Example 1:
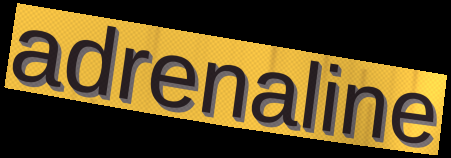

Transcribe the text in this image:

adrenaline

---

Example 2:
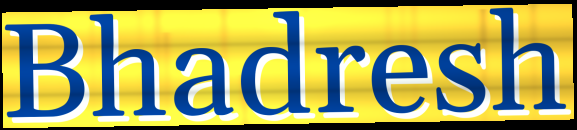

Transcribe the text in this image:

Bhadresh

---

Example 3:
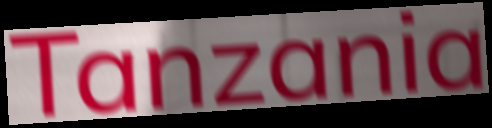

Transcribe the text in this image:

Tanzania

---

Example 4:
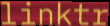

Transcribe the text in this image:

linktr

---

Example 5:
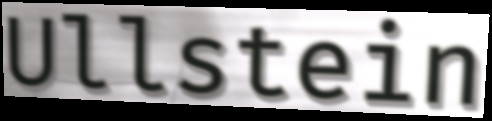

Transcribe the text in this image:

Ullstein